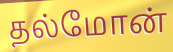
தல்மோன்